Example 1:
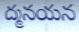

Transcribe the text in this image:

ద్మనయన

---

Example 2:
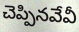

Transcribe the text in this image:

చెప్పినవేవీ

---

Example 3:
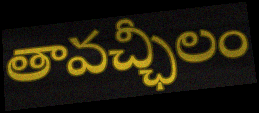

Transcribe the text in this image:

తావచ్ఛీలం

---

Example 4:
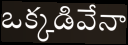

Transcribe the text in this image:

ఒక్కడివేనా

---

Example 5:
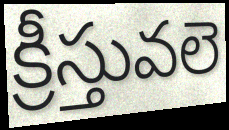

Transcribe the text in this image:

క్రీస్తువలె